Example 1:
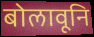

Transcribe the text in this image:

बोलावूनि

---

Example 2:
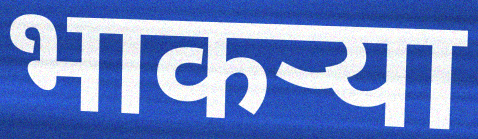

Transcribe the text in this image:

भाकर्‍या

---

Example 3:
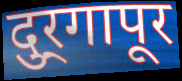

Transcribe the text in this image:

दुर्गापूर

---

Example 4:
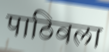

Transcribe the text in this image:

पाठिवला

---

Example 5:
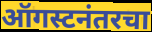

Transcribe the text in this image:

ऑगस्टनंतरचा